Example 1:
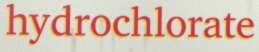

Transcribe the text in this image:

hydrochlorate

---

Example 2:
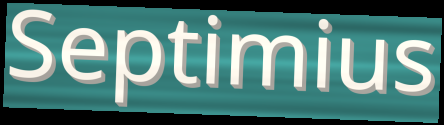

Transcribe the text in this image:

Septimius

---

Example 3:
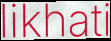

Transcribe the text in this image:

likhati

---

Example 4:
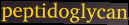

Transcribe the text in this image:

peptidoglycan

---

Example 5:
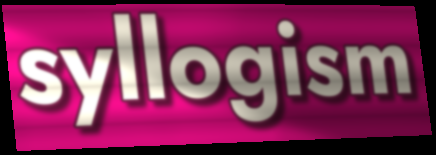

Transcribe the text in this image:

syllogism